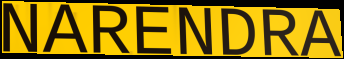
NARENDRA